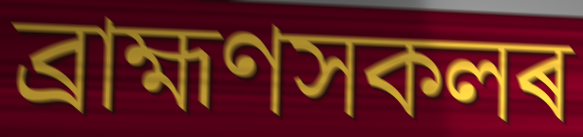
ব্ৰাহ্মণসকলৰ